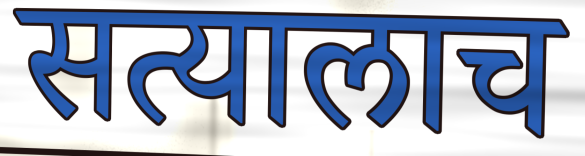
सत्यालाच